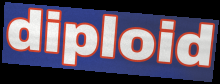
diploid